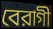
বেরাগী